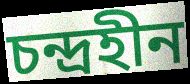
চন্দ্রহীন